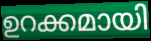
ഉറക്കമായി